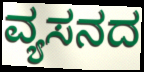
ವ್ಯಸನದ